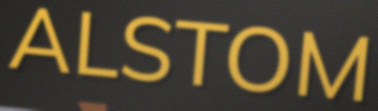
ALSTOM